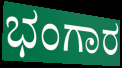
ಭಂಗಾರ